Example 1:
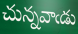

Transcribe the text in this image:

చున్నవాఁడు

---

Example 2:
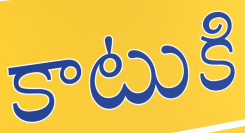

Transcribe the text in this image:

కాటుకి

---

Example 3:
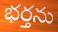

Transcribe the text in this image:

భర్తను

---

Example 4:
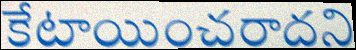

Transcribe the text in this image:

కేటాయించరాదని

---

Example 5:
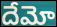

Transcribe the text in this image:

దేమో